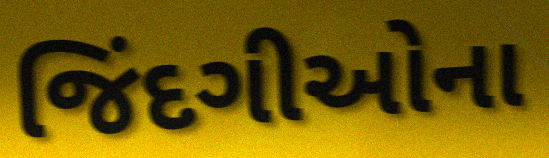
જિંદગીઓના